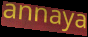
annaya